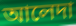
আলেদা